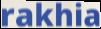
rakhia